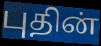
புதின்